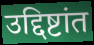
उद्दिष्टांत